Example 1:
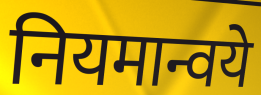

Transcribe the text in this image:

नियमान्वये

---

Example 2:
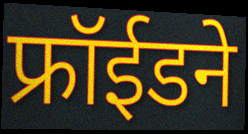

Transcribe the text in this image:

फ्रॉईडने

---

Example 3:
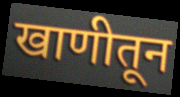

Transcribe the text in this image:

खाणीतून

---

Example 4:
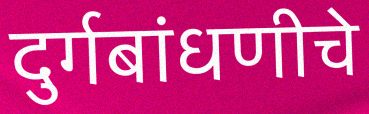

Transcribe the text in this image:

दुर्गबांधणीचे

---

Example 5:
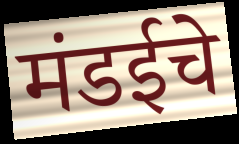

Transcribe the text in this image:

मंडईचे